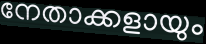
നേതാക്കളായും